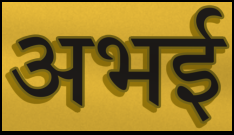
अभई